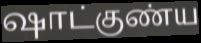
ஷாட்குண்ய